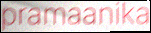
pramaanika